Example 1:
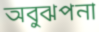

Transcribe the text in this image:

অবুঝপনা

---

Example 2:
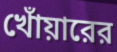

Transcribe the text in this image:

খোঁয়ারের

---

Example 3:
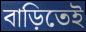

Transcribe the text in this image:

বাড়িতেই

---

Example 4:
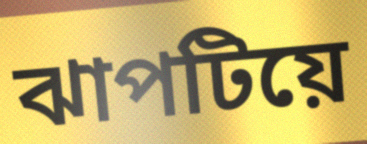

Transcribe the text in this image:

ঝাপটিয়ে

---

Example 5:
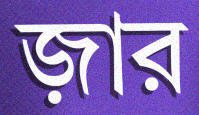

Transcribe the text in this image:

জ়ার